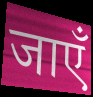
जाएँ